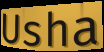
Usha